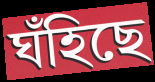
ঘঁহিছে